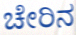
ಚೇರಿನ